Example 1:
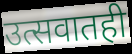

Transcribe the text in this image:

उत्सवातही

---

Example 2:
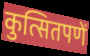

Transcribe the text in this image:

कुत्सितपणें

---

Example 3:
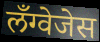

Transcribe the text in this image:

लँग्वेजेस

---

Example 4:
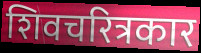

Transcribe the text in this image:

शिवचरित्रकार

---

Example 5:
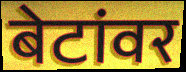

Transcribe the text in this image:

बेटांवर